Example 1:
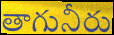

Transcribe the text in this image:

తాగునీరు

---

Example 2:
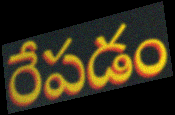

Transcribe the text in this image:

రేపడం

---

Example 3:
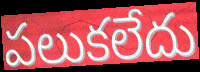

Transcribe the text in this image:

పలుకలేదు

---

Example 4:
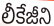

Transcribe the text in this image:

లీకేజీని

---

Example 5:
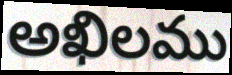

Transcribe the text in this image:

అఖిలము